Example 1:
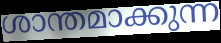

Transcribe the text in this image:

ശാന്തമാക്കുന്ന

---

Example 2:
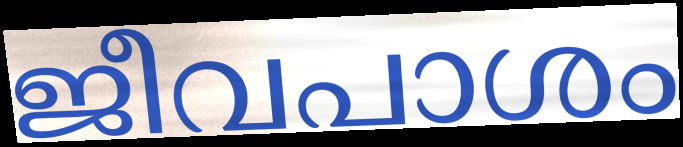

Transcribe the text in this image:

ജീവപാശം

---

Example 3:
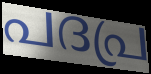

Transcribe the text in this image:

പദപ്ര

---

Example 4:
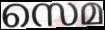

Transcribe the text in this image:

സെമ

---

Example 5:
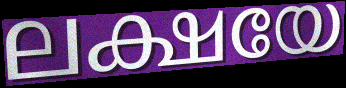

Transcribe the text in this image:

ലക്ഷയേ